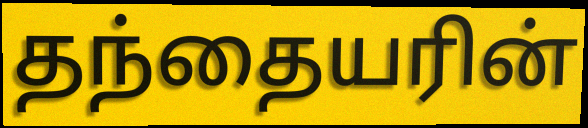
தந்தையரின்